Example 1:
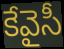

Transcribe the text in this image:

కేవైసీ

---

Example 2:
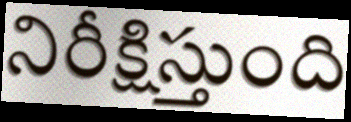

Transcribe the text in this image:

నిరీక్షిస్తుంది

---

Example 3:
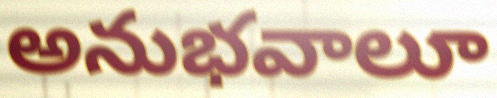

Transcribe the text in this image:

అనుభవాలూ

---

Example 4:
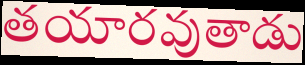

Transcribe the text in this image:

తయారవుతాడు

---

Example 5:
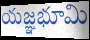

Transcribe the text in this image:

యజ్ఞభూమి